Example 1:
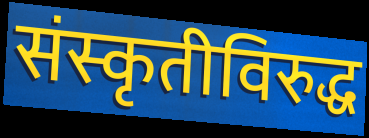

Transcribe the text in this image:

संस्कृतीविरुद्ध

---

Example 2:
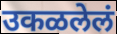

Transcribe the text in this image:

उकळलेलं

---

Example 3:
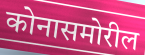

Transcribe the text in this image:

कोनासमोरील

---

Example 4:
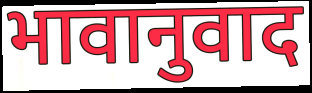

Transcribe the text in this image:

भावानुवाद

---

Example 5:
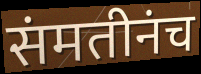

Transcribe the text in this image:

संमतीनंच